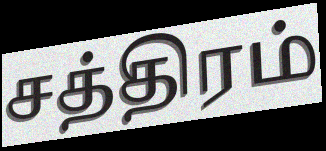
சத்திரம்